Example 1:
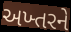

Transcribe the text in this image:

અખ્તરને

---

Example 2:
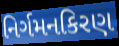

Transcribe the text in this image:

નિર્ગમનકિરણ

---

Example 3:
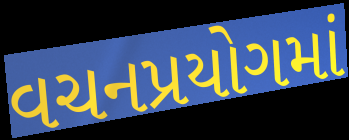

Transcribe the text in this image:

વચનપ્રયોગમાં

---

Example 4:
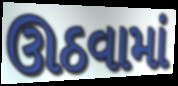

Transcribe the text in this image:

ઊઠવામાં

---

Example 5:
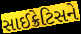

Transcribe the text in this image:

સાઈક્રેટિસને